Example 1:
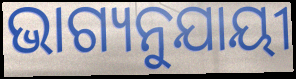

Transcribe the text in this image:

ଭାଗ୍ୟନୁଯାୟୀ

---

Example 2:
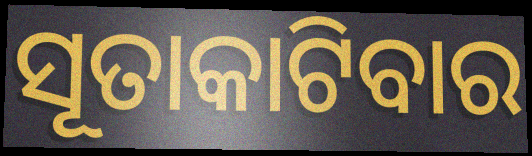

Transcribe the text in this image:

ସୂତାକାଟିବାର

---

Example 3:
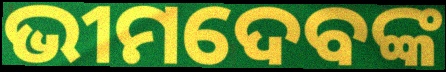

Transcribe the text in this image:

ଭୀମଦେବଙ୍କ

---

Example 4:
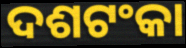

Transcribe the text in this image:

ଦଶଟଂକା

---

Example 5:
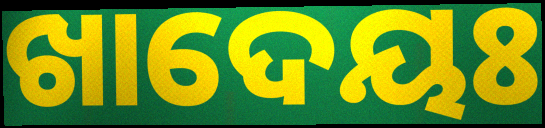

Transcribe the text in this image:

ଖାଦେୟଃ